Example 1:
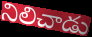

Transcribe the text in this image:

నిలిచాడు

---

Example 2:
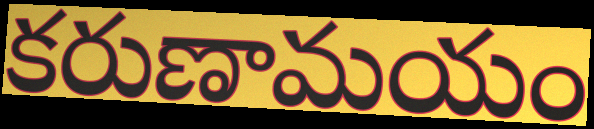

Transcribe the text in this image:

కరుణామయం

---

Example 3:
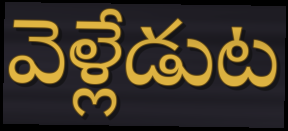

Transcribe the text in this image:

వెళ్లేడుట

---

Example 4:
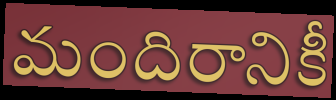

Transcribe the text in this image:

మందిరానికీ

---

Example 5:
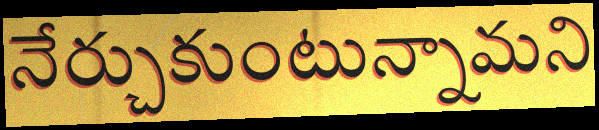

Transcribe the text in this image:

నేర్చుకుంటున్నామని